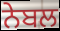
ਨੇਬਲ